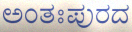
ಅಂತಃಪುರದ